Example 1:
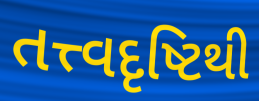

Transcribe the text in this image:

તત્ત્વદૃષ્ટિથી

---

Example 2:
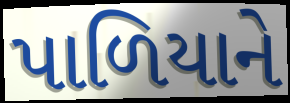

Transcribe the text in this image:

પાળિયાને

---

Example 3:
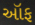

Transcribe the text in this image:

ઑફ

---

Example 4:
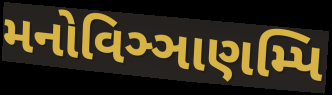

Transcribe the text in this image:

મનોવિઞ્ઞાણમ્પિ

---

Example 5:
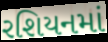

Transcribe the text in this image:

રશિયનમાં